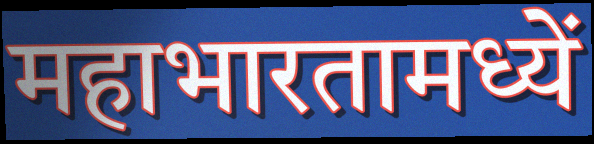
महाभारतामध्यें